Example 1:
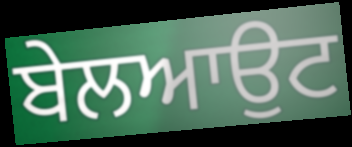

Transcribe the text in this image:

ਬੇਲਆਉਟ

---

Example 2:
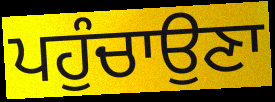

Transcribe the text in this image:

ਪਹੁੰਚਾਉਣਾ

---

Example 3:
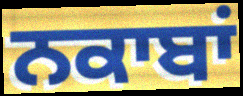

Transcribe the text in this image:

ਨਕਾਬਾਂ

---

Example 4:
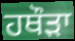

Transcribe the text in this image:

ਹਥੌੜਾ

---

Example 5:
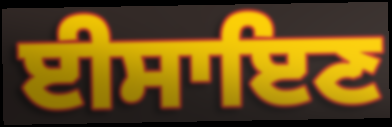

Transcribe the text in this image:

ਈਸਾਇਣ